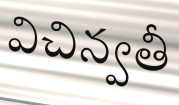
విచిన్వతీ